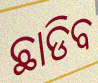
ଛାଡିବ